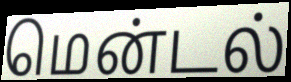
மென்டல்